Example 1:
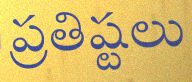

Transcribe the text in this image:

ప్రతిష్టలు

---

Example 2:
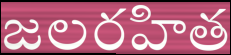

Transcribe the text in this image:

జలరహిత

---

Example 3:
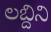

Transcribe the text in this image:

లబ్దిని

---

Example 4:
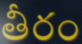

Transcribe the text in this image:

తీరం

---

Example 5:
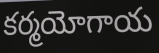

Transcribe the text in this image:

కర్మయోగాయ